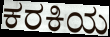
ಕರಕಿಯ